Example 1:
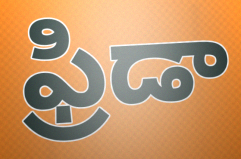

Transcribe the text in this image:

ఫ్రిడా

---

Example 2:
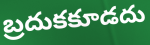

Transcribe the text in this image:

బ్రదుకకూడదు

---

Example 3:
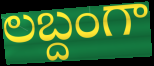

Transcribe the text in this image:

లబ్దంగా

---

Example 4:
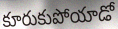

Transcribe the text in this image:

కూరుకుపోయాడో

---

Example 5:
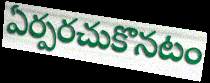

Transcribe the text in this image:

ఏర్పరచుకొనటం